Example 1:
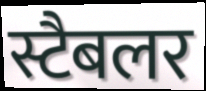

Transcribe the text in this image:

स्टैबलर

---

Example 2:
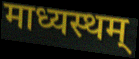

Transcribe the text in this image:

माध्यस्थम्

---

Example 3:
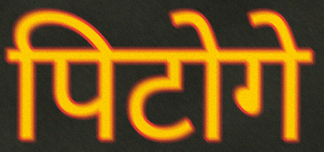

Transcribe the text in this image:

पिटोगे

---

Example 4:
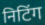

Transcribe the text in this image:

निटिंग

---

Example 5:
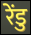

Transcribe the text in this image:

रेंडु